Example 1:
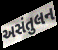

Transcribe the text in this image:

અસંતુલન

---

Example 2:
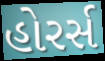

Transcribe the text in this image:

હોરર્સ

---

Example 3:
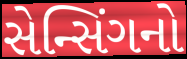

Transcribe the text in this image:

સેન્સિંગનો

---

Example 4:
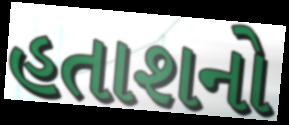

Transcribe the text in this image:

હતાશનો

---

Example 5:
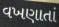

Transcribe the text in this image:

વખણાતાં